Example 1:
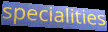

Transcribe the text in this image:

specialities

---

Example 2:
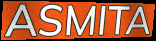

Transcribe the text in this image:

ASMITA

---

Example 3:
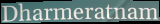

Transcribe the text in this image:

Dharmeratnam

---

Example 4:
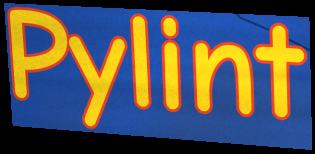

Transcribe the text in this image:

Pylint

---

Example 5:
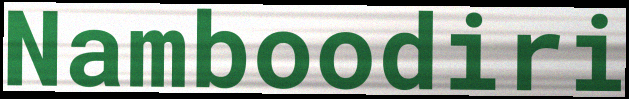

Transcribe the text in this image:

Namboodiri